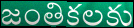
జంతికలకు